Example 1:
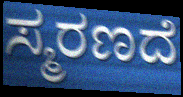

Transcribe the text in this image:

ಸ್ಮರಣದೆ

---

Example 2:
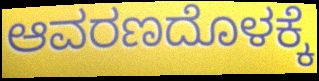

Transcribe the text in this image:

ಆವರಣದೊಳಕ್ಕೆ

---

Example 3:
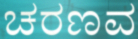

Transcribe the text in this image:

ಚರಣವ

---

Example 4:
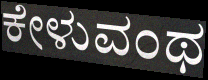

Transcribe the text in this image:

ಕೇಳುವಂಥ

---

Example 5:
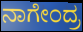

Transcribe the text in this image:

ನಾಗೇಂದ್ರ